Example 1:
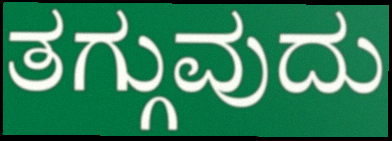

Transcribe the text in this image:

ತಗ್ಗುವುದು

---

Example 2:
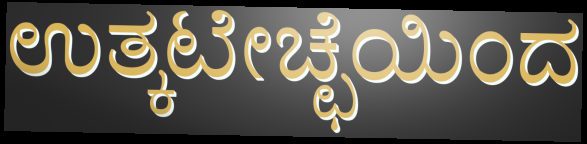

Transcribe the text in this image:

ಉತ್ಕಟೇಚ್ಛೆಯಿಂದ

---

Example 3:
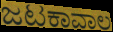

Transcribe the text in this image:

ಜಟಕಾವಾಲ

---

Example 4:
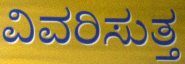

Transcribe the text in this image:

ವಿವರಿಸುತ್ತ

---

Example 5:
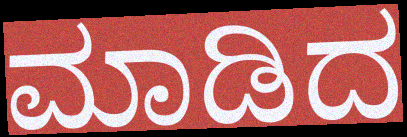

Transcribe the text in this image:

ಮಾಡಿದ